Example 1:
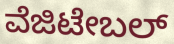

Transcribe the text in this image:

ವೆಜಿಟೇಬಲ್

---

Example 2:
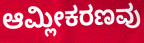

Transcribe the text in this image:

ಆಮ್ಲೀಕರಣವು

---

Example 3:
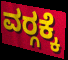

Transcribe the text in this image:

ವರ‍್ಗಕ್ಕೆ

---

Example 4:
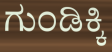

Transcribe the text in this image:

ಗುಂಡಿಕ್ಕಿ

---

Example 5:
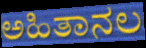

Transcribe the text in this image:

ಅಹಿತಾನಲ